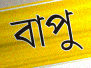
বাপু